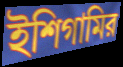
ইশিগামির